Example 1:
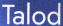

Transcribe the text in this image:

Talod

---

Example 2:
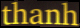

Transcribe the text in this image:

thanh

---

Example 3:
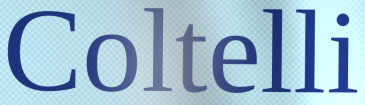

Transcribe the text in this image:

Coltelli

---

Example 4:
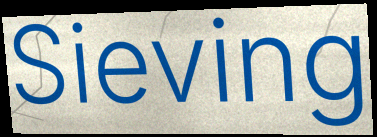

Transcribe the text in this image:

Sieving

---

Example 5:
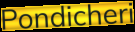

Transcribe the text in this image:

Pondicheri